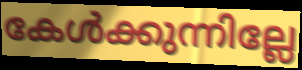
കേൾക്കുന്നില്ലേ